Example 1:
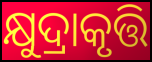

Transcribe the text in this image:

କ୍ଷୁଦ୍ରାକୃତ୍ତି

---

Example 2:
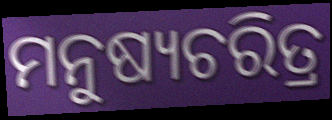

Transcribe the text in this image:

ମନୁଷ୍ୟଚରିତ୍ର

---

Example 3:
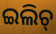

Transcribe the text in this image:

ଇଲିଚ୍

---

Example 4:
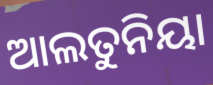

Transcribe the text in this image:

ଆଲତୁନିୟା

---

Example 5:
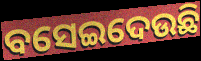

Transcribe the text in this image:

ବସେଇଦେଉଛି